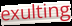
exulting